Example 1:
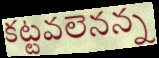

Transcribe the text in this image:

కట్టవలెనన్న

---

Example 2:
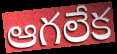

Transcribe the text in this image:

ఆగలేక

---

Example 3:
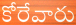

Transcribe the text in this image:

కోరేవారు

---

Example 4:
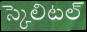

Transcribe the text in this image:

స్కెలిటల్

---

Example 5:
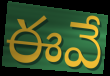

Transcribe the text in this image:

ఈవే